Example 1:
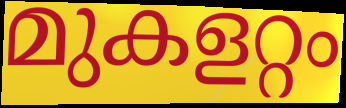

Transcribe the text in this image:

മുകളറ്റം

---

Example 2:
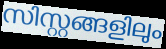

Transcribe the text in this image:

സിസ്റ്റങ്ങളിലും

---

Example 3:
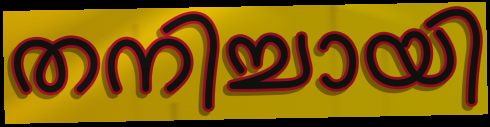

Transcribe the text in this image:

തനിച്ചായി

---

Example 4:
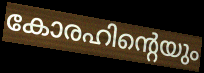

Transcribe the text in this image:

കോരഹിന്റെയും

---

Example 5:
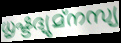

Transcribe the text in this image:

ധൃഷ്ടദ്യുമ്നസ്യ